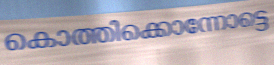
കൊത്തിക്കൊന്നോട്ടെ